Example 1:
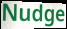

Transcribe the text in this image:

Nudge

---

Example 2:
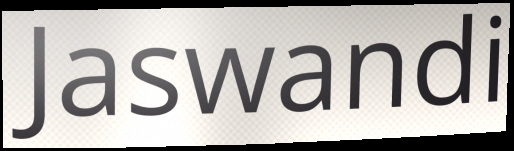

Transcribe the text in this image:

Jaswandi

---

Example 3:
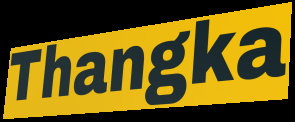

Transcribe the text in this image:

Thangka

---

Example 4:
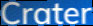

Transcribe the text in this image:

Crater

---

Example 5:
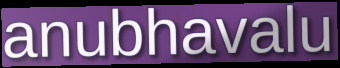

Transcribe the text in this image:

anubhavalu